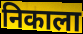
निकाला